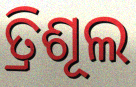
ତ୍ରିଶୂଲ